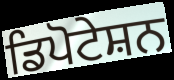
ਡਿਪੋਟੇਸ਼ਨ